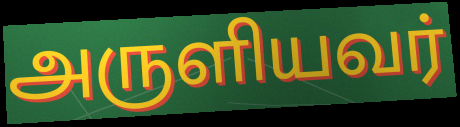
அருளியவர்